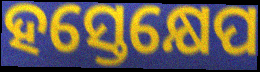
ହସ୍ତେକ୍ଷେପ